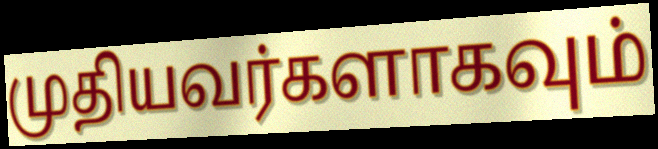
முதியவர்களாகவும்